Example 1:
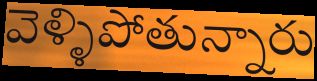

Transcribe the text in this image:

వెళ్ళిపోతున్నారు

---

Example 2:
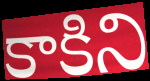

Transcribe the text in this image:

కాకిని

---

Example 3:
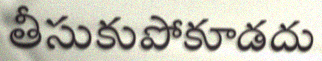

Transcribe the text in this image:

తీసుకుపోకూడదు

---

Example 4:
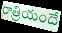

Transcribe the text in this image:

రాత్రియందే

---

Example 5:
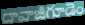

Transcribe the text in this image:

దావాజీగూడెం